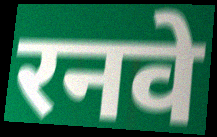
रनवे